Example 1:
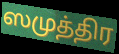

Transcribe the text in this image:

ஸமுத்திர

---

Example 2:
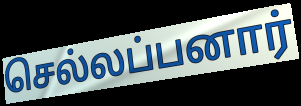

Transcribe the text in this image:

செல்லப்பனார்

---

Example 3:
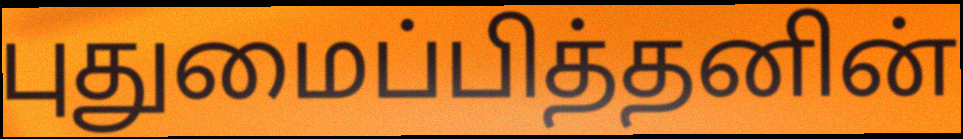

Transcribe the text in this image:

புதுமைப்பித்தனின்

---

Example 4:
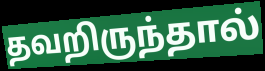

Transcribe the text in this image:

தவறிருந்தால்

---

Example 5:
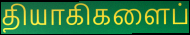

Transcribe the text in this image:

தியாகிகளைப்